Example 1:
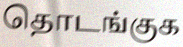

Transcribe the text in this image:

தொடங்குக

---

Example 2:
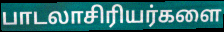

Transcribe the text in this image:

பாடலாசிரியர்களை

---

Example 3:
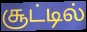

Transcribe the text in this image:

சூட்டில்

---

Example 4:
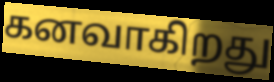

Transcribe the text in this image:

கனவாகிறது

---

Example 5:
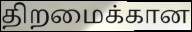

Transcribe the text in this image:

திறமைக்கான